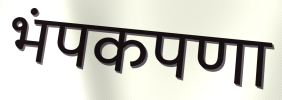
भंपकपणा